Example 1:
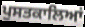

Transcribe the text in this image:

ਪੁਸਤਕਾਲਿਆਂ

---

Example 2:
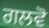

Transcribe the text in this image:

ਗਲਵੋ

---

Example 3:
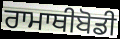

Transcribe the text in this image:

ਰਾਮਾਥੀਬੋਡੀ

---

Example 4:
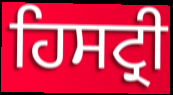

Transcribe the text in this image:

ਹਿਸਟ੍ਰੀ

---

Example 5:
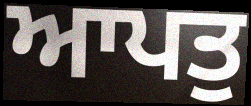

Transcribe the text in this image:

ਆਪਤੁ